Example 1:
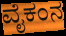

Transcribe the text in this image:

ವೈಕಂನ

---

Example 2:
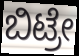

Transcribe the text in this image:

ಬಿಟ್ರೇ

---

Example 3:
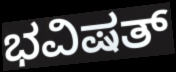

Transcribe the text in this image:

ಭವಿಷತ್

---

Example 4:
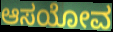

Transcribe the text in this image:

ಆಸಯೋವ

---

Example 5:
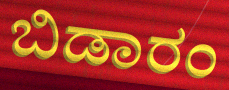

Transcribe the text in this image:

ಬಿಡಾರಂ